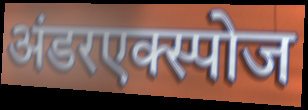
अंडरएक्स्पोज